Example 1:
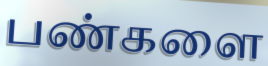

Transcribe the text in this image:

பண்களை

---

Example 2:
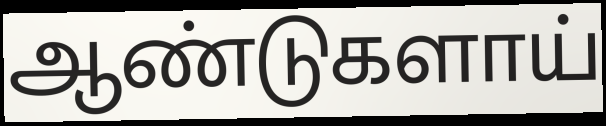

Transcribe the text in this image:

ஆண்டுகளாய்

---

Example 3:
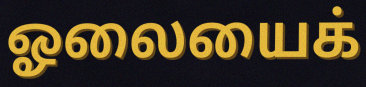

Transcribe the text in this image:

ஓலையைக்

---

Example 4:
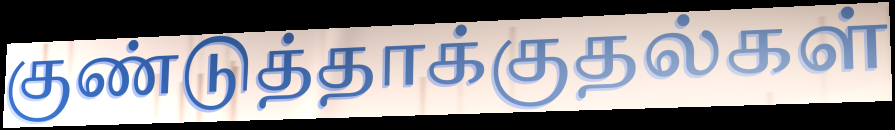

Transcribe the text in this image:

குண்டுத்தாக்குதல்கள்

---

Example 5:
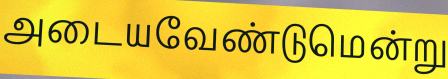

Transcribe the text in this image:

அடையவேண்டுமென்று